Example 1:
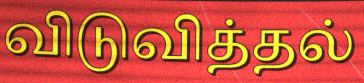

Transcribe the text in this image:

விடுவித்தல்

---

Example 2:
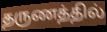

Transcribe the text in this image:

தருணத்தில்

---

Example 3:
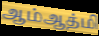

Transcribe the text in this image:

ஆம்ஆத்மி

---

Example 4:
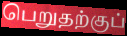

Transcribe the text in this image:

பெறுதற்குப்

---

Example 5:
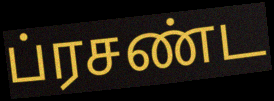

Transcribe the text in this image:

ப்ரசண்ட